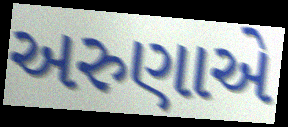
અરુણાએ